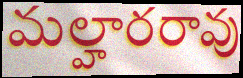
మల్హారరావు